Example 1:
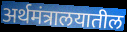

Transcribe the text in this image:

अर्थमंत्रालयातील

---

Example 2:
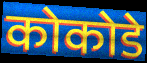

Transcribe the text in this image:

कोकोडे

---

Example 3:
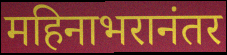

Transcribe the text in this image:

महिनाभरानंतर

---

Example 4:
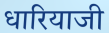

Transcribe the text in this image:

धारियाजी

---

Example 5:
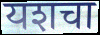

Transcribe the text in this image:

यशचा